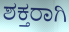
ಶಕ್ತರಾಗಿ